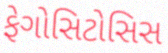
ફેગોસિટોસિસ